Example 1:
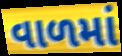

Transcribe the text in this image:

વાળમાં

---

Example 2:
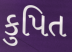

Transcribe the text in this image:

કુપિત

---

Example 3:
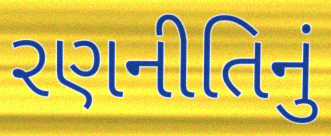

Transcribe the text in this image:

રણનીતિનું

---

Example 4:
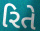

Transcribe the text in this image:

રિતે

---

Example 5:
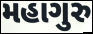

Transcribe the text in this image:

મહાગુરુ